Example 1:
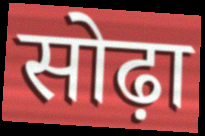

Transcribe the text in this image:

सोढ़ा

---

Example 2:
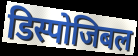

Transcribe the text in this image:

डिस्पोजिबल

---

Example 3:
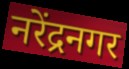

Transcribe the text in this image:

नरेंद्रनगर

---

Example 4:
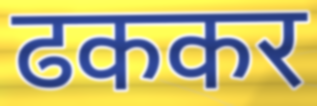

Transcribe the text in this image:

ढककर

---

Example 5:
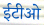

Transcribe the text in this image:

ईटीओ